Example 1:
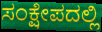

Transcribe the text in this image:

ಸಂಕ್ಷೇಪದಲ್ಲಿ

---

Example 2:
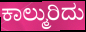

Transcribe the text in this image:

ಕಾಲ್ಮುರಿದು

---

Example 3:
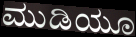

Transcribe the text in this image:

ಮುಡಿಯೂ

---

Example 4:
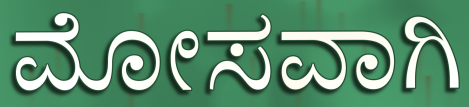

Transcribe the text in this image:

ಮೋಸವಾಗಿ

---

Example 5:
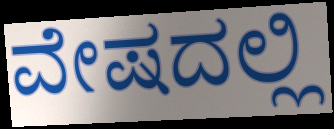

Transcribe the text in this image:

ವೇಷದಲ್ಲಿ